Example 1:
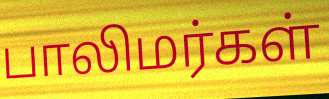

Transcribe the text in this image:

பாலிமர்கள்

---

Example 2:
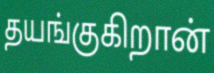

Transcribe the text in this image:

தயங்குகிறான்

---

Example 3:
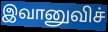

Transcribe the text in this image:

இவானுவிச்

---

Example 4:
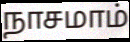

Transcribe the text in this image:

நாசமாம்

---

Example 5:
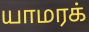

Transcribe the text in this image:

யாமரக்